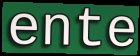
ente